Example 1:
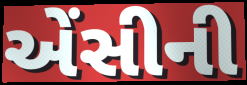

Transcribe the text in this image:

એંસીની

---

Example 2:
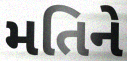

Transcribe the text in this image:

મતિને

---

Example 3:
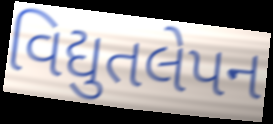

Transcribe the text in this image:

વિદ્યુતલેપન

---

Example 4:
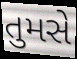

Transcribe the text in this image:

તુમસે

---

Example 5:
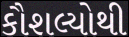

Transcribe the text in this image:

કૌશલ્યોથી